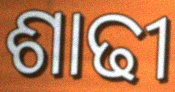
ଶାଢୀ